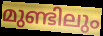
മുണ്ടിലും